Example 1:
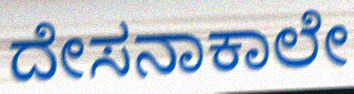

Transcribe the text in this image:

ದೇಸನಾಕಾಲೇ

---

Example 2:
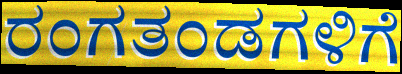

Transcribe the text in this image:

ರಂಗತಂಡಗಳಿಗೆ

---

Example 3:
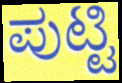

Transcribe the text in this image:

ಪುಟ್ಟಿ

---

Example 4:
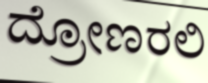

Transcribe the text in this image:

ದ್ರೋಣರಲಿ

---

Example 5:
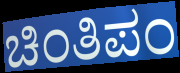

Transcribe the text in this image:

ಚಿಂತಿಪಂ